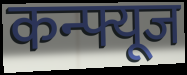
कन्फ्यूज